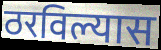
ठरविल्यास